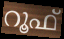
റൂഫ്